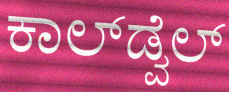
ಕಾಲ್‌ಡ್ವೆಲ್